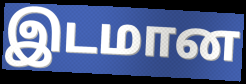
இடமான